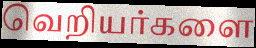
வெறியர்களை